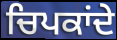
ਚਿਪਕਾਂਦੇ